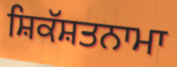
ਸ਼ਿਕੱਸ਼ਤਨਾਮਾ